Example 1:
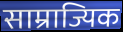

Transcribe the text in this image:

साम्राज्यिक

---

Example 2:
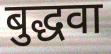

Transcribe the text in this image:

बुद्धवा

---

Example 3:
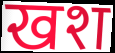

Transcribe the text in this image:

खश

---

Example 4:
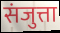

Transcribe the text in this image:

संजुत्ता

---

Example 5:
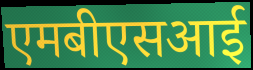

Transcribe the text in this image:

एमबीएसआई